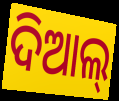
ଦିଆଲ୍